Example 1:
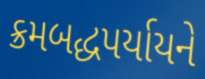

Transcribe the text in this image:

ક્રમબદ્ધપર્યાયને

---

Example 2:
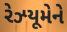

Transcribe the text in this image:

રેઝ્યૂમેને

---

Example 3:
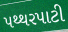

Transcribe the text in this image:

પથ્થરપાટી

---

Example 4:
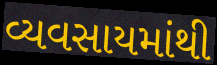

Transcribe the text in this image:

વ્યવસાયમાંથી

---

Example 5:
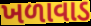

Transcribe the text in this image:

ખળાવાડ